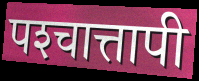
पश्‍चात्तापी